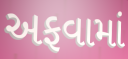
અફવામાં